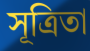
সূত্রিতা